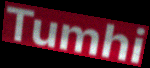
Tumhi